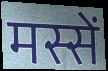
मस्सें